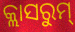
କ୍ଲାସରୁମ୍